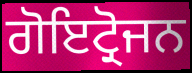
ਗੋਇਟ੍ਰੋਜਨ